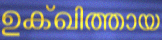
ഉക്ഖിത്തായ